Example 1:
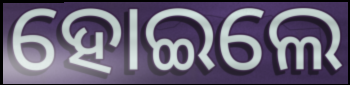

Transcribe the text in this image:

ହୋଇଲେ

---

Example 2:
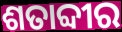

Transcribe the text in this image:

ଶତାବ୍ଦୀର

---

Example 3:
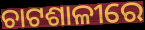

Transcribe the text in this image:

ଚାଟଶାଳୀରେ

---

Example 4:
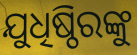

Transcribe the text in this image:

ଯୁଧିଷ୍ଠିରଙ୍କୁ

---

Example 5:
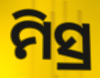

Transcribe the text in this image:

ମିସ୍ର